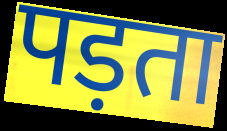
पड़ता